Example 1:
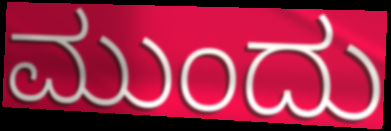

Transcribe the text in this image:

ಮುಂದು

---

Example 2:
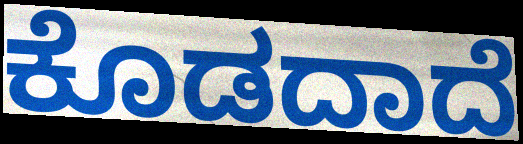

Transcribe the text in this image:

ಕೊಡದಾದೆ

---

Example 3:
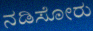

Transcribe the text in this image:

ನಡಿಸೋರು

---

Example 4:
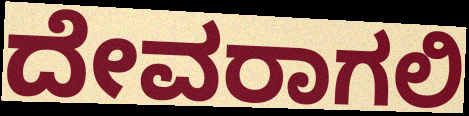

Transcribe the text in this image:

ದೇವರಾಗಲಿ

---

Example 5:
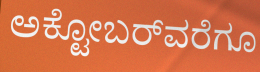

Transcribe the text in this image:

ಅಕ್ಟೋಬರ್‌ವರೆಗೂ